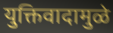
युक्तिवादामुळे